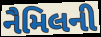
નૈમિલની